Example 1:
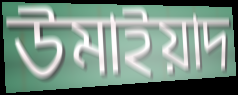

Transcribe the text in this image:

উমাইয়াদ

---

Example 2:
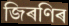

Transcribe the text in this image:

জিৰণিৰ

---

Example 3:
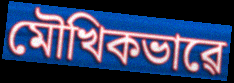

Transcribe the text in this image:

মৌখিকভাৱে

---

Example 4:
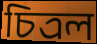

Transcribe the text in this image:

চিত্ৰল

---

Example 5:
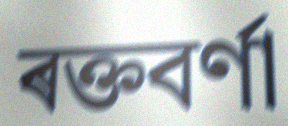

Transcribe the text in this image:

ৰক্তবৰ্ণা